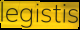
legistis